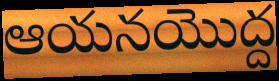
ఆయనయొద్ద